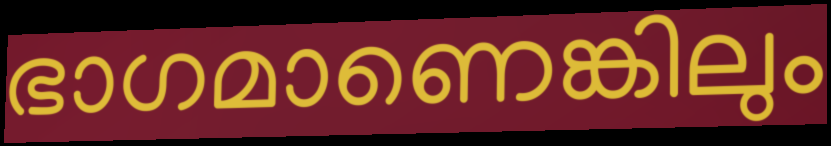
ഭാഗമാണെങ്കിലും